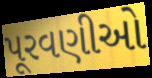
પૂરવણીઓ